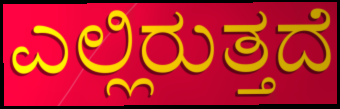
ಎಲ್ಲಿರುತ್ತದೆ